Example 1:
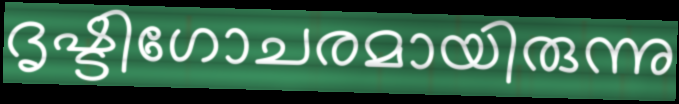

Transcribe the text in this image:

ദൃഷ്ടിഗോചരമായിരുന്നു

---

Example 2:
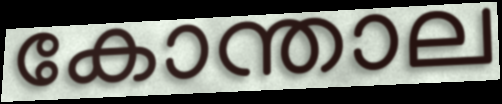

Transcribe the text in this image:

കോന്താല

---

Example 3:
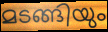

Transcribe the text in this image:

മടങ്ങിയും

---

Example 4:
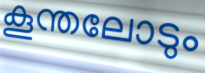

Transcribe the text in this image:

കൂന്തലോടും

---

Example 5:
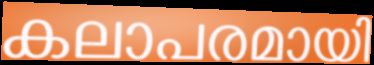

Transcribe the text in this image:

കലാപരമായി